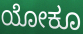
ಯೋಕೂ